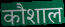
कौशाल